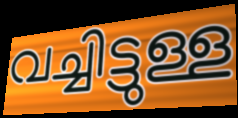
വച്ചിട്ടുള്ള